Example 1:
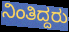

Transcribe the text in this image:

ನಿಂತಿದ್ದರು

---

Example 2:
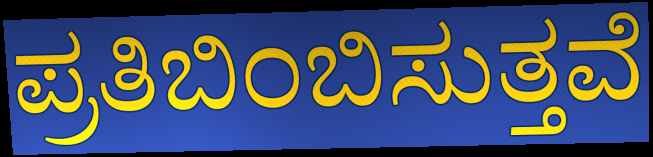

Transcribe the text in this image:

ಪ್ರತಿಬಿಂಬಿಸುತ್ತವೆ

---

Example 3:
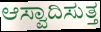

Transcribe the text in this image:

ಆಸ್ವಾದಿಸುತ್ತ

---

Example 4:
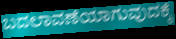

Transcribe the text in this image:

ಬದಲಾವಣೆಯಾಗುವುದಕ್ಕೆ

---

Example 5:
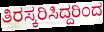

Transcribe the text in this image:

ತಿರಸ್ಕರಿಸಿದ್ದರಿಂದ